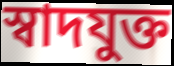
স্বাদযুক্ত